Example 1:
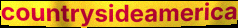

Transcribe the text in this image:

countrysideamerica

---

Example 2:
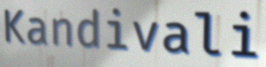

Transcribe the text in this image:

Kandivali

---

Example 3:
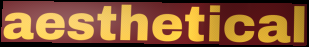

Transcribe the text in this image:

aesthetical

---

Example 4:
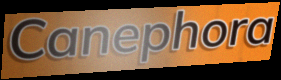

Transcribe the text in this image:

Canephora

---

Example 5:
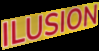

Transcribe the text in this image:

ILUSION